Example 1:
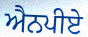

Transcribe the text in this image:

ਐਨਪੀਏ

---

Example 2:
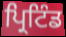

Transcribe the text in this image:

ਪ੍ਰਿਟਿੰਡ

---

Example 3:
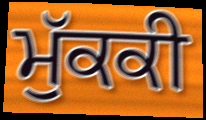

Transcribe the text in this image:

ਮੁੱਕਕੀ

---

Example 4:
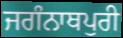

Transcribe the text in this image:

ਜਗੰਨਾਥਪੁਰੀ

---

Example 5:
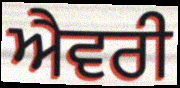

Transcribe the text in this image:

ਐਵਰੀ